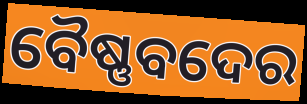
ବୈଷ୍ଣବଦେର